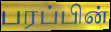
பரப்பின்